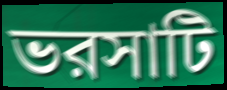
ভরসাটি